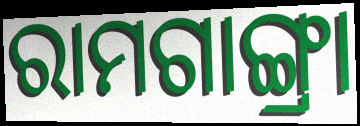
ରାମଗାଙ୍ଗ୍ରା